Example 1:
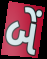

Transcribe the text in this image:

બેં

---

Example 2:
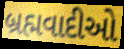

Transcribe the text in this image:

બ્રહ્મવાદીઓ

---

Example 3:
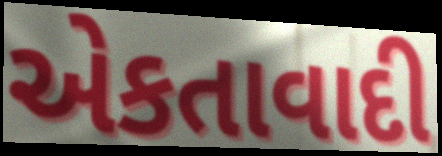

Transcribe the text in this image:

એકતાવાદી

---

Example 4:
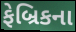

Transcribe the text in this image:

ફેબ્રિકના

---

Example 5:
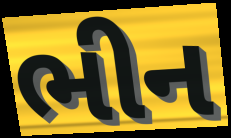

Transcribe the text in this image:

ભીન